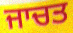
ਜਾਚਤ